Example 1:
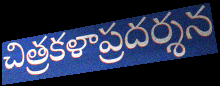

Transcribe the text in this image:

చిత్రకళాప్రదర్శన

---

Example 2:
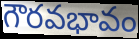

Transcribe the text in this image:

గౌరవభావం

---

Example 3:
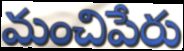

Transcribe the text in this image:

మంచిపేరు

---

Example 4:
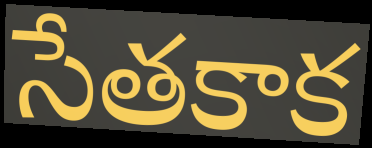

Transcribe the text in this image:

సేతకాక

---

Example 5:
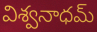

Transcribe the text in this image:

విశ్వనాధమ్